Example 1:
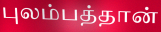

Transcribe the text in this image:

புலம்பத்தான்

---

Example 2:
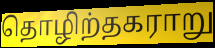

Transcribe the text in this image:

தொழிற்தகராறு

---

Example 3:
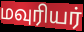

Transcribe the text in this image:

மவுரியர்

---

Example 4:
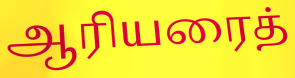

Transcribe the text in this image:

ஆரியரைத்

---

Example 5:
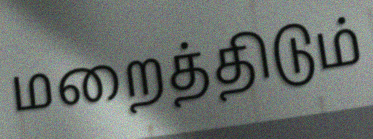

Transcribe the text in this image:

மறைத்திடும்